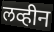
लव्हीन